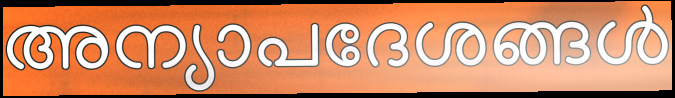
അന്യാപദേശങ്ങൾ